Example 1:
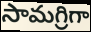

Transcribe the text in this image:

సామగ్రిగా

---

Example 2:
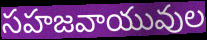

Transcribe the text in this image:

సహజవాయువుల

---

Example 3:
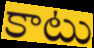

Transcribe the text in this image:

కాటు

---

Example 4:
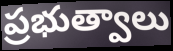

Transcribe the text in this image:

ప్రభుత్వాలు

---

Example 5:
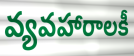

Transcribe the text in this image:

వ్యవహారాలకీ